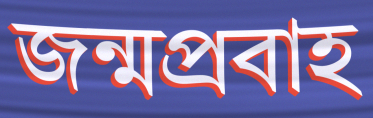
জন্মপ্রবাহ